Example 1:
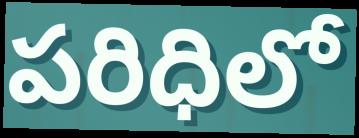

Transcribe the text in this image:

పరిధిలో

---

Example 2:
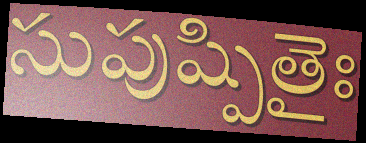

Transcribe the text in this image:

సుపుష్పితైః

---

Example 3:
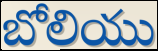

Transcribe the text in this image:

బోలియు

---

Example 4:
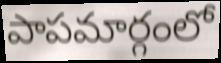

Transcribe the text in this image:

పాపమార్గంలో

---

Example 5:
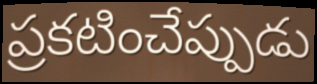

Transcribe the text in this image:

ప్రకటించేప్పుడు